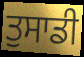
ਤੁਸਾਡੀ